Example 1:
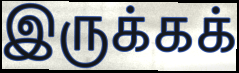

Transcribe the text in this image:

இருக்கக்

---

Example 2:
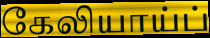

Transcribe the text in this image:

கேலியாய்ப்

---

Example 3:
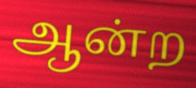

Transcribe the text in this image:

ஆன்ற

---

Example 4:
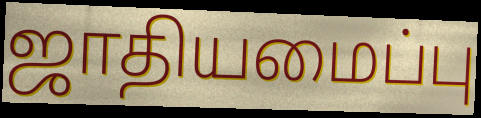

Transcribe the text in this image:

ஜாதியமைப்பு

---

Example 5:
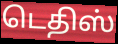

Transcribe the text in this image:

டெதிஸ்